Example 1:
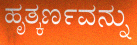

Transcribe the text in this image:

ಹೃತ್ಕರ್ಣವನ್ನು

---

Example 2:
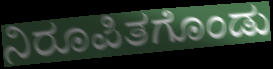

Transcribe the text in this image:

ನಿರೂಪಿತಗೊಂಡು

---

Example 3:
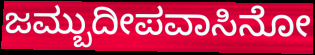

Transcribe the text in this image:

ಜಮ್ಬುದೀಪವಾಸಿನೋ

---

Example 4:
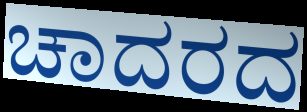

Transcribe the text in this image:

ಚಾದರದ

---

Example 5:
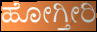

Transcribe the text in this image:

ಹೋಗ್ತೀರಿ